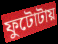
ফুটোটায়